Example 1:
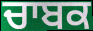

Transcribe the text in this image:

ਚਾਬਕ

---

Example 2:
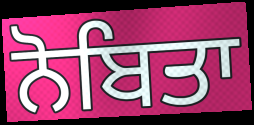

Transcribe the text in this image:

ਨੋਬਿਤਾ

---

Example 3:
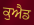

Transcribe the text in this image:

ਕੁਐਡ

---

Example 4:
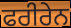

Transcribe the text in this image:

ਫਰੀਰੇਨ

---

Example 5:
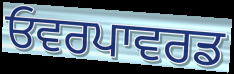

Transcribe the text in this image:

ਓਵਰਪਾਵਰਡ